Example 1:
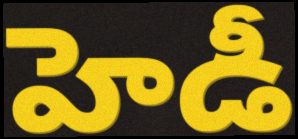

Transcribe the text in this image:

హెడీ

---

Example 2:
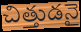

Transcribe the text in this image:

చిత్తుడనై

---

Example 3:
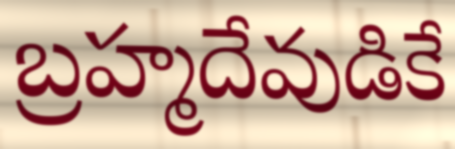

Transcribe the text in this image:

బ్రహ్మదేవుడికే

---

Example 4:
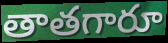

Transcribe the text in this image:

తాతగారూ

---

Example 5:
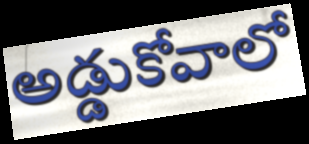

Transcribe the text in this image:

అడ్డుకోవాలో